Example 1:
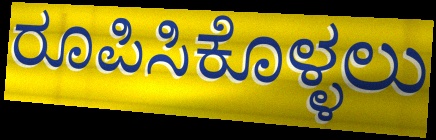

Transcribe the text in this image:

ರೂಪಿಸಿಕೊಳ್ಳಲು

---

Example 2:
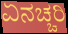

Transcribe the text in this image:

ಏನಚ್ಚರಿ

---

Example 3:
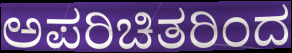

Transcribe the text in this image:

ಅಪರಿಚಿತರಿಂದ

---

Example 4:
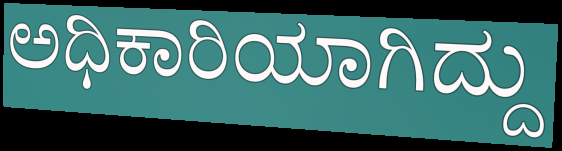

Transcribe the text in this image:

ಅಧಿಕಾರಿಯಾಗಿದ್ದು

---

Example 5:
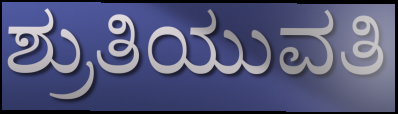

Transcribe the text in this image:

ಶ್ರುತಿಯುವತಿ